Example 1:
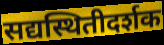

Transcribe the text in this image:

सद्यस्थितीदर्शक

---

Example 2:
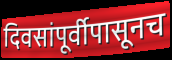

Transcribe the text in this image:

दिवसांपूर्वीपासूनच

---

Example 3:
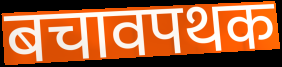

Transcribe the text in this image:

बचावपथक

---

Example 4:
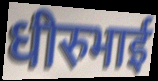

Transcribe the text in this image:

धीरुभाई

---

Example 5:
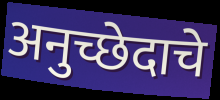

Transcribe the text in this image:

अनुच्छेदाचे